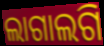
ଲାଗାଲଗି